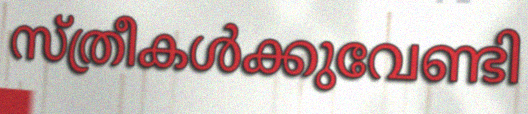
സ്ത്രീകൾക്കുവേണ്ടി